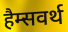
हैम्सवर्थ